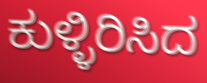
ಕುಳ್ಳಿರಿಸಿದ